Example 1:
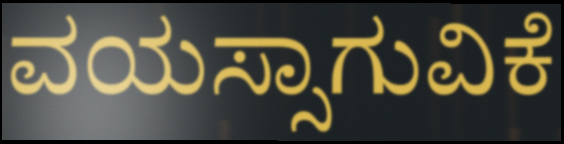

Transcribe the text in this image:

ವಯಸ್ಸಾಗುವಿಕೆ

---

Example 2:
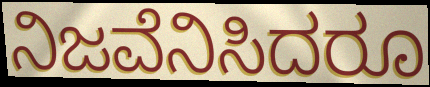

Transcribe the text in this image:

ನಿಜವೆನಿಸಿದರೂ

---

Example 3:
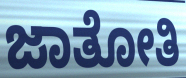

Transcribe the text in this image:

ಜಾತೋತಿ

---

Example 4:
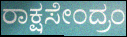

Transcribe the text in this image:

ರಾಕ್ಷಸೇಂದ್ರಂ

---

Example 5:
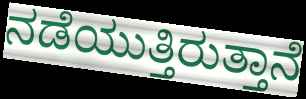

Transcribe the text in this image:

ನಡೆಯುತ್ತಿರುತ್ತಾನೆ